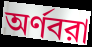
অর্ণবরা